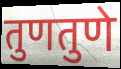
तुणतुणे